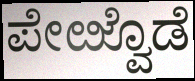
ಪೇೞ್ವೊಡೆ